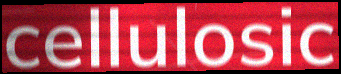
cellulosic